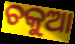
ଚକୁଆ